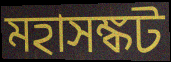
মহাসঙ্কট